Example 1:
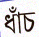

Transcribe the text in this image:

ধাঁচ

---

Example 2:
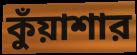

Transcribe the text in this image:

কুঁয়াশার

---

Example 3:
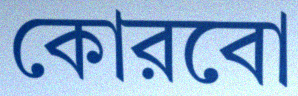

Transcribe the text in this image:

কোরবো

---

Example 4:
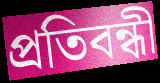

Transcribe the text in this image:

প্রতিবন্ধী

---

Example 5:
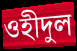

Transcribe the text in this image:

ওহীদুল